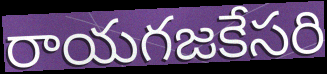
రాయగజకేసరి